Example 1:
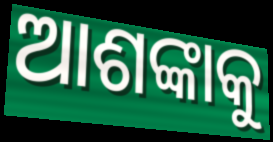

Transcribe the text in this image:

ଆଶଙ୍କାକୁ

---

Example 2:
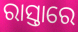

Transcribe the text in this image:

ରାସ୍ତାରେ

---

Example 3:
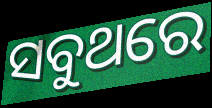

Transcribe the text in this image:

ସବୁଥରେ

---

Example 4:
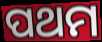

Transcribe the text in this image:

ପଥମ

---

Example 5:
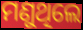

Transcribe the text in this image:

ମଣୁଥିଲେ